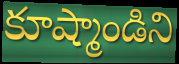
కూష్మాండిని